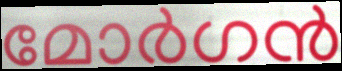
മോർഗൻ